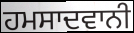
ਹਮਸਾਦਵਾਨੀ